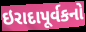
ઇરાદાપૂર્વકનો